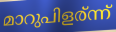
മാറുപിളര്ന്ന്